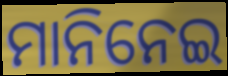
ମାନିନେଇ